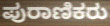
ಪುರಾಣಿಕರು